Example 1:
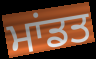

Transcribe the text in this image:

ਮਾਂਡਤ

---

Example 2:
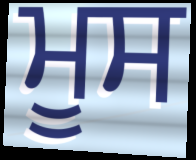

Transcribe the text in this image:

ਮੂਸ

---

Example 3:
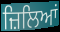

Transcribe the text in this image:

ਜ਼ਿਲਿਆਂ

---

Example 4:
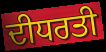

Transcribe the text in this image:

ਦੀਧਰਤੀ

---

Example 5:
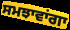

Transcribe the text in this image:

ਸਮਝਾਵਾਂਗਾ